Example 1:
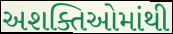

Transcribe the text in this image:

અશક્તિઓમાંથી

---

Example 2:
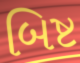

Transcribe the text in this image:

બિષ્ટ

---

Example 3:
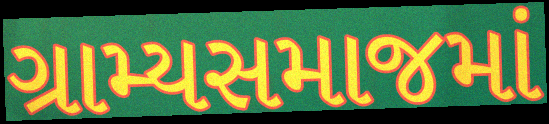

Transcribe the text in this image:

ગ્રામ્યસમાજમાં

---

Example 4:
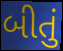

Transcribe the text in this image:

બીતું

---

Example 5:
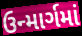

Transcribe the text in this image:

ઉન્માર્ગમાં